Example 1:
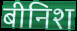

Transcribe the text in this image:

बीनिश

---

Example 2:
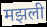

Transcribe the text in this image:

मझली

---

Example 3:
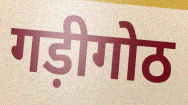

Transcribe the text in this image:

गड़ीगोठ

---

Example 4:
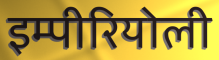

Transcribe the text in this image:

इम्पीरियोली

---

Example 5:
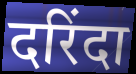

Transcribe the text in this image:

दरिंदा